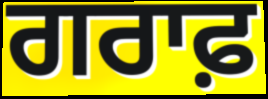
ਗਰਾਫ਼